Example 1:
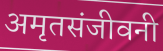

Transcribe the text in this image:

अमृतसंजीवनी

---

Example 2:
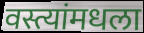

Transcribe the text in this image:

वस्त्यांमधला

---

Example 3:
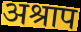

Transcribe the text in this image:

अश्राप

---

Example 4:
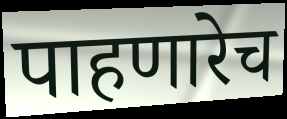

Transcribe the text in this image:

पाहणारेच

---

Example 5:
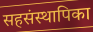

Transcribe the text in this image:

सहसंस्थापिका